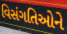
વિસંગતિઓને